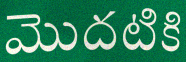
మొదటికి